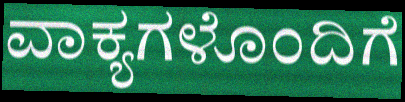
ವಾಕ್ಯಗಳೊಂದಿಗೆ